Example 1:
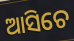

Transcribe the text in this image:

ଆସିଚେ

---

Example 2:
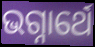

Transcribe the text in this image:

ଭଗ୍ନାର୍ଥେ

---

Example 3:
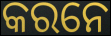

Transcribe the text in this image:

କରନେ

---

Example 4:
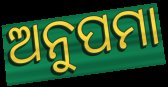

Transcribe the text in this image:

ଅନୁପମା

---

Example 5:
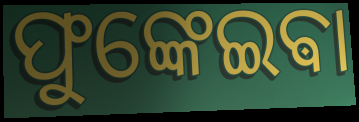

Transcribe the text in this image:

ଫୁଙ୍କେଇଵା